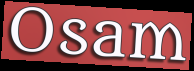
Osam